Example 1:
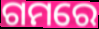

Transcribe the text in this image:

ଗମରେ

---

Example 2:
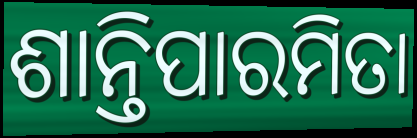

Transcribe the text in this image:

ଶାନ୍ତିପାରମିତା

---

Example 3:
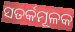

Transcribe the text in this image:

ସତର୍କମୂଳକ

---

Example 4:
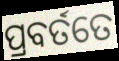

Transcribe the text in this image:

ପ୍ରବର୍ତତେ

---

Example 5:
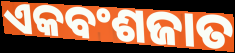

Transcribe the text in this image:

ଏକବଂଶଜାତ